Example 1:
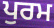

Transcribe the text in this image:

ਪੁਰਮ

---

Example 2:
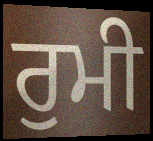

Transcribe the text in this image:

ਰੁਮੀ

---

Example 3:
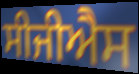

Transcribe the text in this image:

ਸੀਜੀਐਸ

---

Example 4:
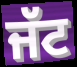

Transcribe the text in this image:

ਜੱਟ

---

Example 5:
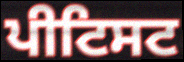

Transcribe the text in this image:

ਪੀਟਿਸਟ